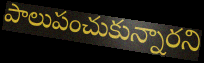
పాలుపంచుకున్నారని